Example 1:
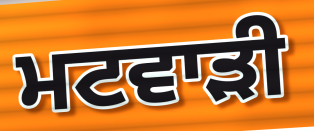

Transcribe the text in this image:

ਮਟਵਾੜੀ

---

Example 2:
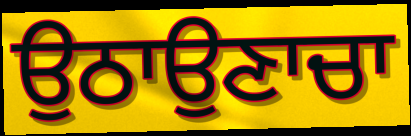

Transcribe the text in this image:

ਉਠਾਉਣਾਚਾ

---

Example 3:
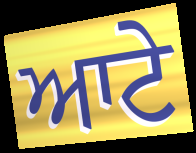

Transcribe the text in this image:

ਆਟੇ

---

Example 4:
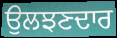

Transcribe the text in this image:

ਉਲਝਣਦਾਰ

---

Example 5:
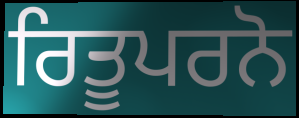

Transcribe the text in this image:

ਰਿਤੂਪਰਨੋ